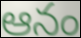
ఆనం